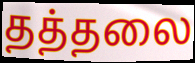
தத்தலை